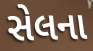
સેલના